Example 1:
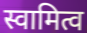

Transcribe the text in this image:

स्वामित्व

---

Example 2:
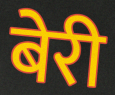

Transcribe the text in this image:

बेरी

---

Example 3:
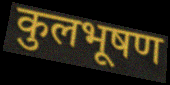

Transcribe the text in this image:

कुलभूषण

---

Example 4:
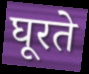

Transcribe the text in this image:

घूरते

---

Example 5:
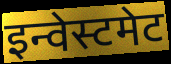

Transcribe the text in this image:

इन्वेस्टमेट